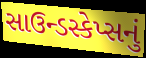
સાઉન્ડસ્કેપ્સનું